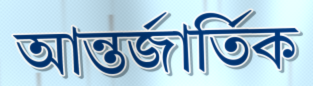
আন্তর্জার্তিক